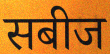
सबीज